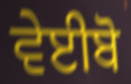
ਵੇਈਬੋ